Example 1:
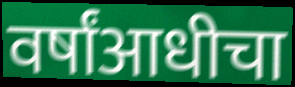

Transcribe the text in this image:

वर्षांआधीचा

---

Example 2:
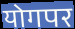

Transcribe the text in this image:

योगपर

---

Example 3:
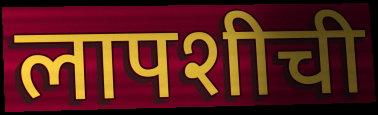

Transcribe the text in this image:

लापशीची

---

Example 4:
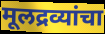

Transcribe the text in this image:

मूलद्रव्यांचा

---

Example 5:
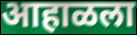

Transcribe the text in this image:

आहाळला